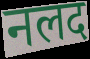
नलद